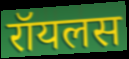
रॉयलस